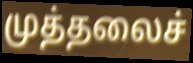
முத்தலைச்